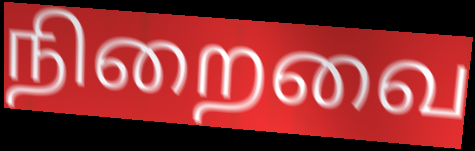
நிறைவை